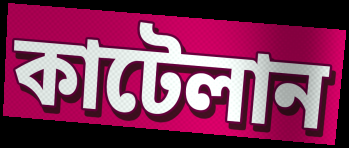
কাটেলান